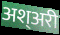
अश्अरी